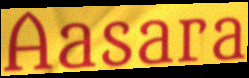
Aasara